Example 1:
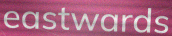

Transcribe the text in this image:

eastwards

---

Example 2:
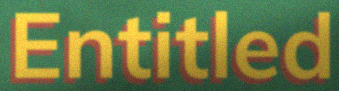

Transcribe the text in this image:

Entitled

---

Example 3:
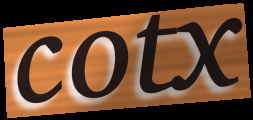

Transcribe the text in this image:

cotx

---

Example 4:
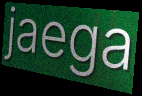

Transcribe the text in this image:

jaega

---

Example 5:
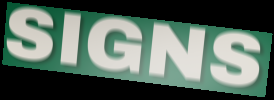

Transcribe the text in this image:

SIGNS